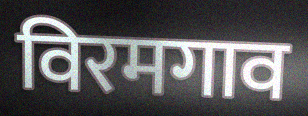
विरमगाव